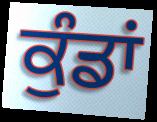
ਕੁੰਡਾਂ